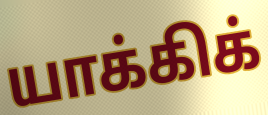
யாக்கிக்